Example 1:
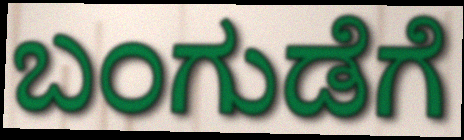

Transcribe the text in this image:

ಬಂಗುಡೆಗೆ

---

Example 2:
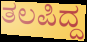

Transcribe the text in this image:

ತಲಪಿದ್ದ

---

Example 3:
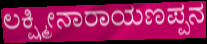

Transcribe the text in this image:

ಲಕ್ಷ್ಮೀನಾರಾಯಣಪ್ಪನ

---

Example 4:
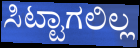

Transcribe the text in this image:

ಸಿಟ್ಟಾಗಲಿಲ್ಲ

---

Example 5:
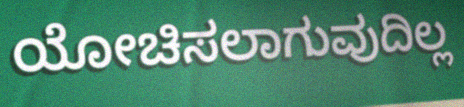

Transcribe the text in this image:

ಯೋಚಿಸಲಾಗುವುದಿಲ್ಲ